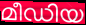
മീഡിയ